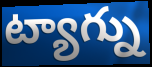
ట్యాగ్ను